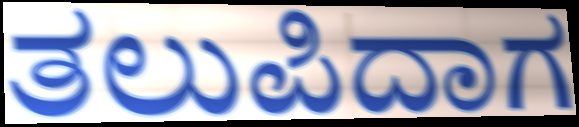
ತಲುಪಿದಾಗ